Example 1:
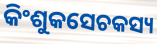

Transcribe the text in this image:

କିଂଶୁକସେଚକସ୍ୟ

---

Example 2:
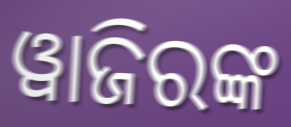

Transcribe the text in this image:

ୱାଜିରଙ୍କ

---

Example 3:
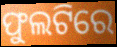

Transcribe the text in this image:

ଫୁଲଟିରେ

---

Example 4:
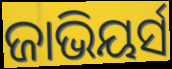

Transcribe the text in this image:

ଜାଭିୟର୍ସ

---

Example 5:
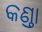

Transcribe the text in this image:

କଣ୍ଡା